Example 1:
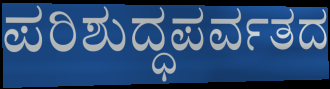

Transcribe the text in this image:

ಪರಿಶುದ್ಧಪರ್ವತದ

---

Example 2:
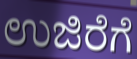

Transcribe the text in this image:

ಉಜಿರೆಗೆ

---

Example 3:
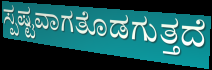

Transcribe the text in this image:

ಸ್ಪಷ್ಟವಾಗತೊಡಗುತ್ತದೆ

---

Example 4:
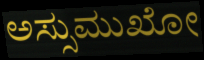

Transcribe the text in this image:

ಅಸ್ಸುಮುಖೋ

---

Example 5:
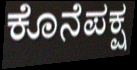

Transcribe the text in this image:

ಕೊನೆಪಕ್ಷ